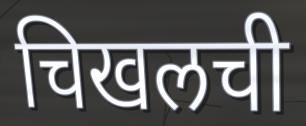
चिखलची